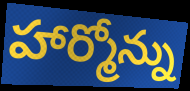
హార్మోన్ను